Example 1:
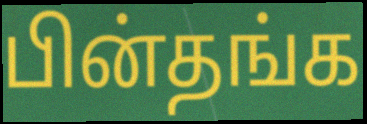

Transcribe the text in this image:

பின்தங்க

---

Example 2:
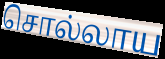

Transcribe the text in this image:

சொல்லாய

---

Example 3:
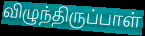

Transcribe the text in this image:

விழுந்திருப்பாள்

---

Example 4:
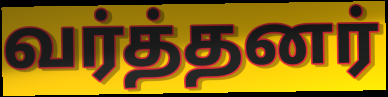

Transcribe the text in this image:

வர்த்தனர்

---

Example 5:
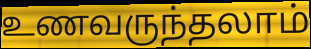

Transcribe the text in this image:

உணவருந்தலாம்